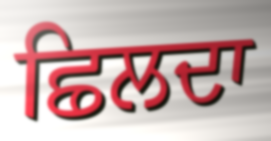
ਛਿਲਦਾ